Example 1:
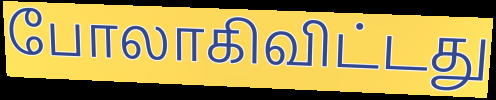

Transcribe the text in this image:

போலாகிவிட்டது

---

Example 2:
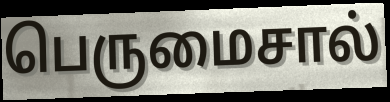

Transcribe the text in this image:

பெருமைசால்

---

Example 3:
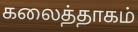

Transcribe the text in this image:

கலைத்தாகம்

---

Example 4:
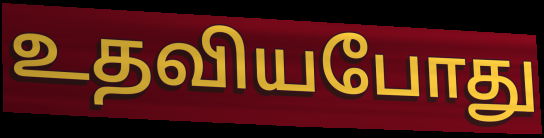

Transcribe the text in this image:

உதவியபோது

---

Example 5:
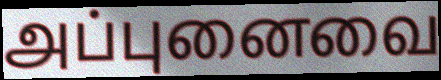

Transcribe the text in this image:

அப்புனைவை